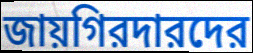
জায়গিরদারদের